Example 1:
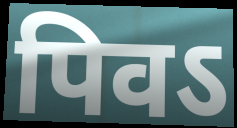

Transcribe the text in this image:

पिवऽ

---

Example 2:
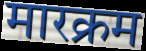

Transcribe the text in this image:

मारक्रम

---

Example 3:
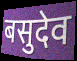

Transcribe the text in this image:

बसुदेव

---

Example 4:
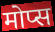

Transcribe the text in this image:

मोप्स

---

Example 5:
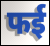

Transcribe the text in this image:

फई